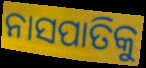
ନାସପାତିକୁ